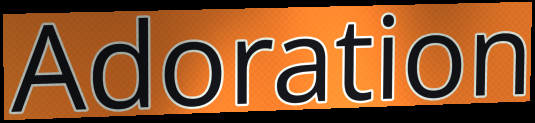
Adoration